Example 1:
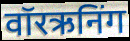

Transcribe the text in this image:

वॉरऋनिंग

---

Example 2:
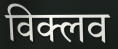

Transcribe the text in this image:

विक्लव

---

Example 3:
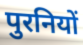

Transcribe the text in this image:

पुरनियों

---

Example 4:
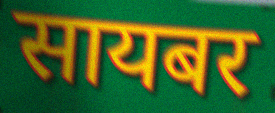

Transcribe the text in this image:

सायबर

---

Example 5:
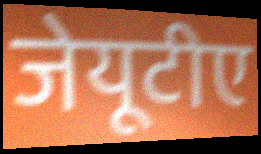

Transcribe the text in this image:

जेयूटीए